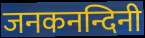
जनकनन्दिनी